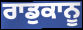
ਰਾਡੁਕਾਨੂ